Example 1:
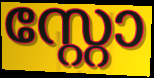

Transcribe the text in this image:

സ്റ്റോ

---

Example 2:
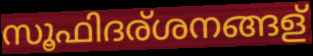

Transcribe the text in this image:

സൂഫിദര്ശനങ്ങള്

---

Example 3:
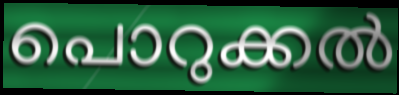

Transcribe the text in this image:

പൊറുക്കൽ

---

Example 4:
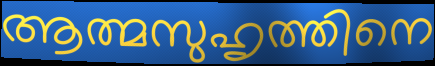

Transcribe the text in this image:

ആത്മസുഹൃത്തിനെ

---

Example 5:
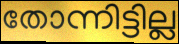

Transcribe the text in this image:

തോന്നിട്ടില്ല